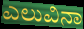
ಎಲುವಿನಾ